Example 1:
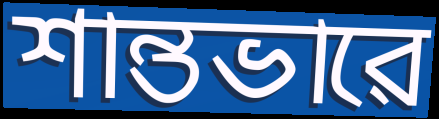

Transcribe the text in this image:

শান্তভাৱে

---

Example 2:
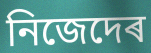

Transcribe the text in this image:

নিজেদেৰ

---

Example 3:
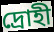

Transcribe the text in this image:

দ্ৰোহী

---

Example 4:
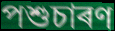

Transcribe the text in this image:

পশুচাৰণ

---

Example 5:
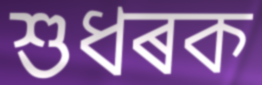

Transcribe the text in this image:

শুধৰক